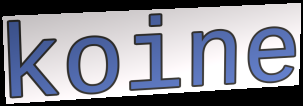
koine